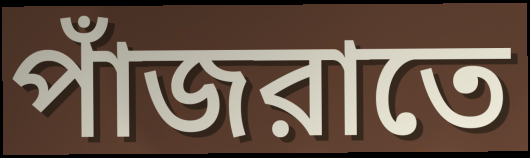
পাঁজরাতে